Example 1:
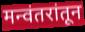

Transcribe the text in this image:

मन्वंतरांतून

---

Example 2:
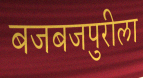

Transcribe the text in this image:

बजबजपुरीला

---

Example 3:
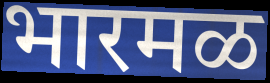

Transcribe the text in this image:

भारमळ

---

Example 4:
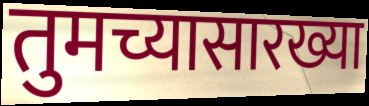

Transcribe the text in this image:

तुमच्यासारख्या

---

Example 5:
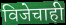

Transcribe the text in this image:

विजेचाही